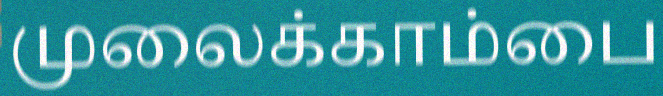
முலைக்காம்பை